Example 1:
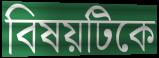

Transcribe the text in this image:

বিষয়টিকে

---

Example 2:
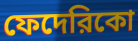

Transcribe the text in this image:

ফেদেরিকো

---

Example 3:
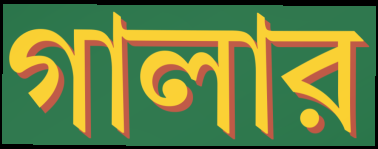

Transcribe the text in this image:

গালার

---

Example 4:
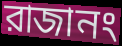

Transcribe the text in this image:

রাজানং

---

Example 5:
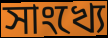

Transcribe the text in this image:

সাংখ্যে